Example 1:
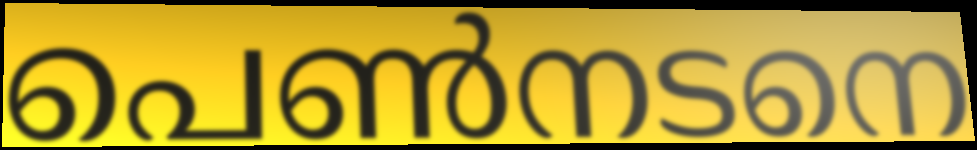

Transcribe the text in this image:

പെൺനടനെ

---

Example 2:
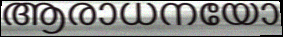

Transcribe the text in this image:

ആരാധനയോ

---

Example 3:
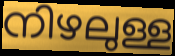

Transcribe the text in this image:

നിഴലുള്ള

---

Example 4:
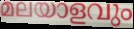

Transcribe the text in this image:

മലയാളവും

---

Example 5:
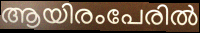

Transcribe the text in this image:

ആയിരംപേരിൽ